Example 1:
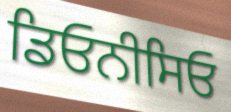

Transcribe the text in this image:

ਡਿਓਨੀਸਿਓ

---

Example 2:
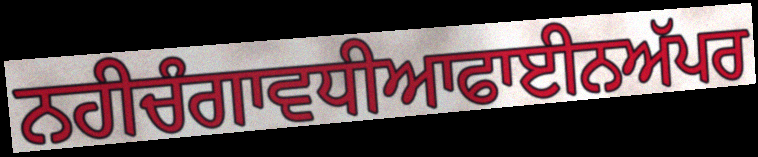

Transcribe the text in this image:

ਨਹੀਚੰਗਾਵਧੀਆਫਾਈਨਅੱਪਰ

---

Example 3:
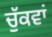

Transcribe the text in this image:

ਚੁੱਕਵਾਂ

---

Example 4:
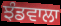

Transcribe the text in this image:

ਝੰਡਵਾਲਾ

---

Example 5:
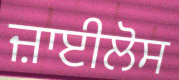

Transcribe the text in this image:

ਜ਼ਾਈਲੋਸ